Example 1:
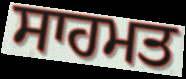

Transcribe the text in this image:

ਸਾਹਮਤ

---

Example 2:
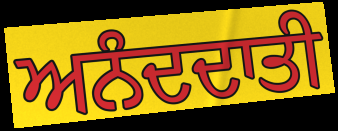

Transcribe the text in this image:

ਅਨੰਦਦਾਤੀ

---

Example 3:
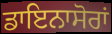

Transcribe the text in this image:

ਡਾਇਨਾਸੋਰਾਂ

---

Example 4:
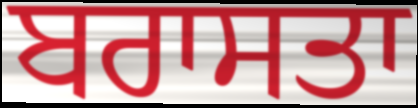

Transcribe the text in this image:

ਬਰਾਸਤਾ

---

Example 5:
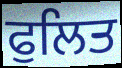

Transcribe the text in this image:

ਫੁਲਿਤ